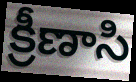
క్రీణాసి